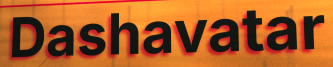
Dashavatar